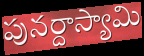
పునర్దాస్యామి